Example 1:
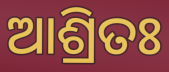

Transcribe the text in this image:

ଆଶ୍ରିତଃ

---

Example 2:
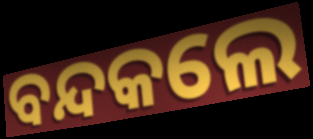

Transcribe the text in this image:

ବନ୍ଦକଲେ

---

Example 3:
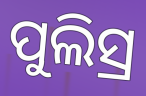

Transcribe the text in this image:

ପୁଲିସ୍ର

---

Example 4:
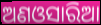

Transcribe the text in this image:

ଅଣଓସାରିଆ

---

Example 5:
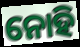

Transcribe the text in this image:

ନୋହି